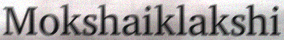
Mokshaiklakshi